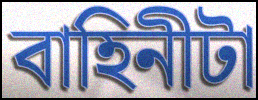
বাহিনীটা